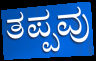
ತಪ್ಪವು